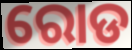
ରୋଡ